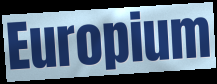
Europium